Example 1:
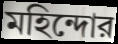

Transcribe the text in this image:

মহিন্দোর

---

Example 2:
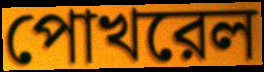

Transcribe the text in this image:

পোখরেল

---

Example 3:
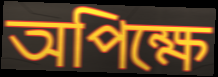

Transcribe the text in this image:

অপিক্ষে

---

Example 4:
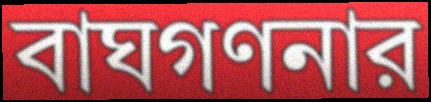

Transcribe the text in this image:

বাঘগণনার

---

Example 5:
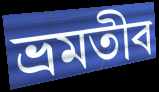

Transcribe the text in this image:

ভ্রমতীব